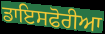
ਡਾਇਸਫੋਰੀਆ